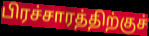
பிரச்சாரத்திற்குச்